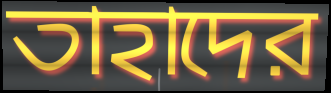
তাহাদের